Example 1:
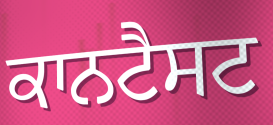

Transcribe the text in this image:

ਕਾਨਟੈਸਟ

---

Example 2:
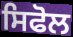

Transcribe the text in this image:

ਸਿਫੋਲ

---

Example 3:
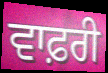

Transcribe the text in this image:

ਵਾਫ਼ਰੀ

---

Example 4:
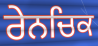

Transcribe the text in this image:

ਰੇਨਚਿਕ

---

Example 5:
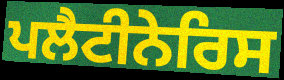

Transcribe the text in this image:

ਪਲੈਟੀਨੇਰਿਸ